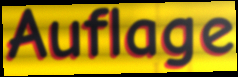
Auflage